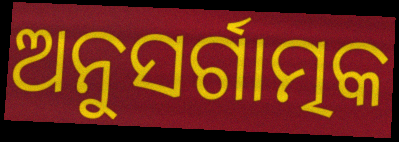
ଅନୁସର୍ଗାତ୍ମକ